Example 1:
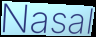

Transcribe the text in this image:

Nasal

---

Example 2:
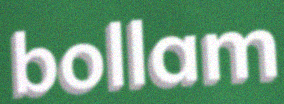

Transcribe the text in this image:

bollam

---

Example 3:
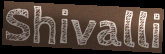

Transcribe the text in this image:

Shivalli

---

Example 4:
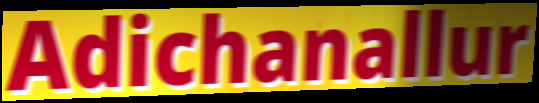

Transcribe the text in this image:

Adichanallur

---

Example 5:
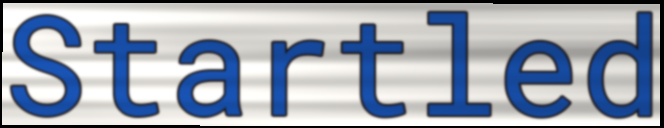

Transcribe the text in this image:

Startled